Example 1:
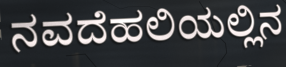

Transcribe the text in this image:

ನವದೆಹಲಿಯಲ್ಲಿನ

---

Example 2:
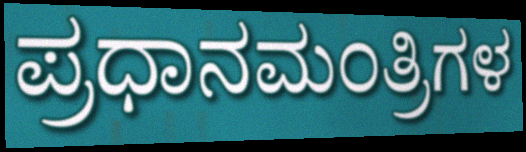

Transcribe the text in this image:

ಪ್ರಧಾನಮಂತ್ರಿಗಳ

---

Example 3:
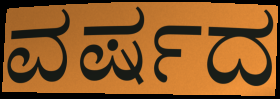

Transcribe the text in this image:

ವರ್ಷದ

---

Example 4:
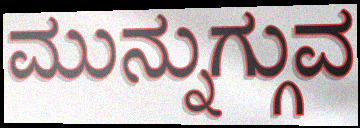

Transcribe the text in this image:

ಮುನ್ನುಗ್ಗುವ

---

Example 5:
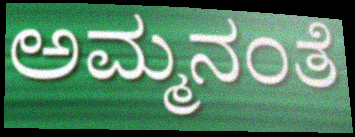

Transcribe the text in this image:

ಅಮ್ಮನಂತೆ